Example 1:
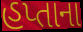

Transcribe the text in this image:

હપ્તાના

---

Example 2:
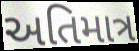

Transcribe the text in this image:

અતિમાત્ર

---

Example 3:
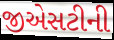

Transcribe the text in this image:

જીએસટીની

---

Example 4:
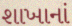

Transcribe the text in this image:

શાખાનાં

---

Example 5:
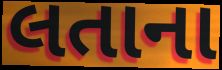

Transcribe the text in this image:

લતાના